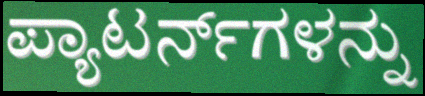
ಪ್ಯಾಟರ್ನ್‌ಗಳನ್ನು